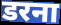
डरना